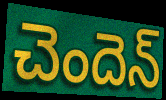
చెందెన్